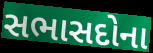
સભાસદોના